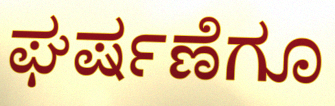
ಘರ್ಷಣೆಗೂ